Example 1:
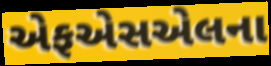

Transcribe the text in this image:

એફએસએલના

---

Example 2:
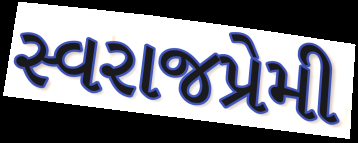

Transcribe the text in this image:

સ્વરાજપ્રેમી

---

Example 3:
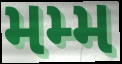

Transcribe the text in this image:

મમ્મ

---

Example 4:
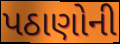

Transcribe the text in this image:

પઠાણોની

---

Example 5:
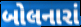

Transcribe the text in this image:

બોલનારાં